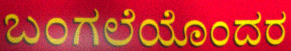
ಬಂಗಲೆಯೊಂದರ